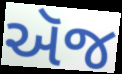
ઍજ